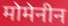
मोमेनीन